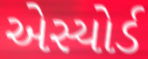
એસ્યોર્ડ